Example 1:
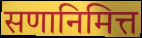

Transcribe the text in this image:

सणानिमित्त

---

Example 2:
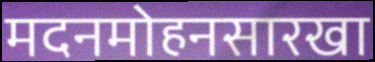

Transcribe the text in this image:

मदनमोहनसारखा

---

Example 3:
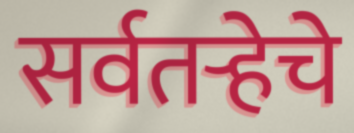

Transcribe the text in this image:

सर्वतऱ्हेचे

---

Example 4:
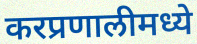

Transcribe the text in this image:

करप्रणालीमध्ये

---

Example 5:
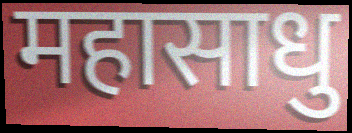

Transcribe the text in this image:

महासाधु